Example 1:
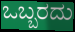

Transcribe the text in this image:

ಒಬ್ಬರದು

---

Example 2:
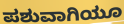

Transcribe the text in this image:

ಪಶುವಾಗಿಯೂ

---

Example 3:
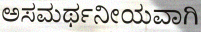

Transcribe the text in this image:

ಅಸಮರ್ಥನೀಯವಾಗಿ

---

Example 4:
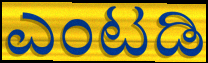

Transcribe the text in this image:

ಎಂಟಡಿ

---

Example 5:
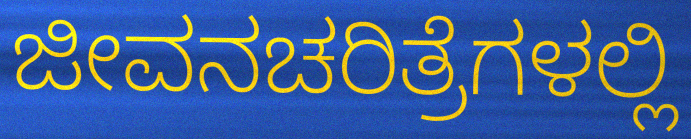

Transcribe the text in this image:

ಜೀವನಚರಿತ್ರೆಗಳಲ್ಲಿ